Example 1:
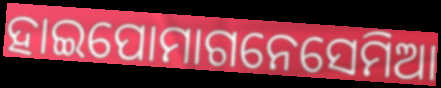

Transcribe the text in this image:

ହାଇପୋମାଗନେସେମିଆ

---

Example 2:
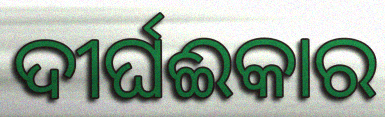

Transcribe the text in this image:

ଦୀର୍ଘଈକାର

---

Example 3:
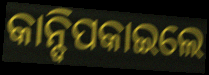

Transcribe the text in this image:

କାନ୍ଦିପକାଇଲେ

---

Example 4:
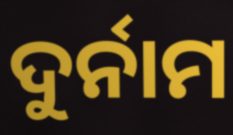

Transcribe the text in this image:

ଦୁର୍ନାମ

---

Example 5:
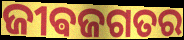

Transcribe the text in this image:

ଜୀଵଜଗତର